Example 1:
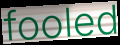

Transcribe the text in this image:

fooled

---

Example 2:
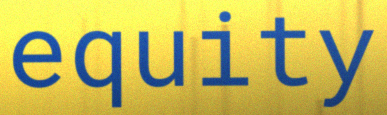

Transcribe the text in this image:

equity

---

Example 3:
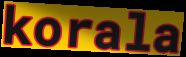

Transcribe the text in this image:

korala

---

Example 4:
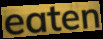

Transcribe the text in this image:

eaten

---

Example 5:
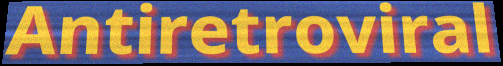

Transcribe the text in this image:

Antiretroviral